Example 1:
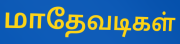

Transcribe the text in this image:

மாதேவடிகள்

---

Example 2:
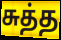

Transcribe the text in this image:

சுத்த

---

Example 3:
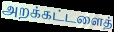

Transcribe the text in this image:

அறக்கட்டளைத்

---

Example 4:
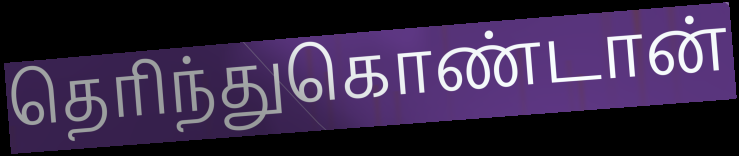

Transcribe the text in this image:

தெரிந்துகொண்டான்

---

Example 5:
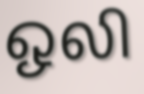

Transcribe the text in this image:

ஒலி